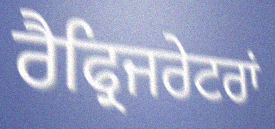
ਰੈਫ੍ਰਿਜਰੇਟਰਾਂ